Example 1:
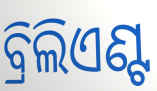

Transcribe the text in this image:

ବ୍ରିଲିଏଣ୍ଟ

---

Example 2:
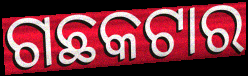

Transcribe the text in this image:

ଗଛକଟାର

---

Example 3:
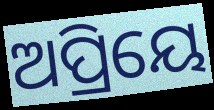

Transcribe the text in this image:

ଅପ୍ରିୟେ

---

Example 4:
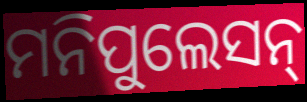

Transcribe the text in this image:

ମନିପୁଲେସନ୍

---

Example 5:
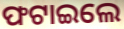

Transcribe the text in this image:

ଫଟାଇଲେ